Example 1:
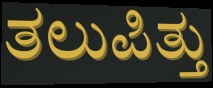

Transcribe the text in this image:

ತಲುಪಿತ್ತು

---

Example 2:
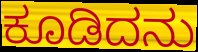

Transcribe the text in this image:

ಕೂಡಿದನು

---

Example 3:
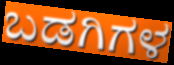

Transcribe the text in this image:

ಬಡಗಿಗಳ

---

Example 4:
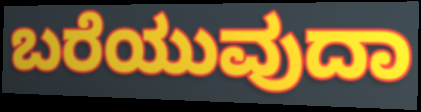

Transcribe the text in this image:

ಬರೆಯುವುದಾ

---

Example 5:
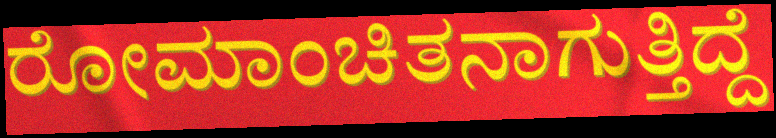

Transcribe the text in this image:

ರೋಮಾಂಚಿತನಾಗುತ್ತಿದ್ದೆ